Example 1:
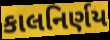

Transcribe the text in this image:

કાલનિર્ણય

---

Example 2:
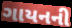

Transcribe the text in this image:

ગાયનની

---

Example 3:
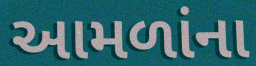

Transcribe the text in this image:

આમળાંના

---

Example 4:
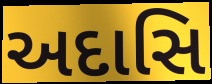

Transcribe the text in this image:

અદાસિ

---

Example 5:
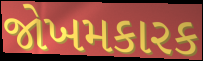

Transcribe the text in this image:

જોખમકારક